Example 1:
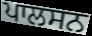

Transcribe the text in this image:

ਪਾਲਸਨ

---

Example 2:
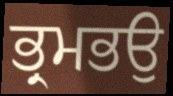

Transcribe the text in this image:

ਭ੍ਰਮਭਉ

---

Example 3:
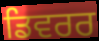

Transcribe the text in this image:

ਡਿਵਰਰ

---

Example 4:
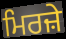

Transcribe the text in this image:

ਮਿਰਜ਼ੇ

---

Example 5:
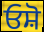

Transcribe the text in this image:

ਓਸ਼ੋ